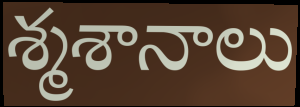
శ్మశానాలు